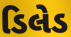
ડિલેડ